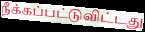
நீக்கப்பட்டுவிட்டது